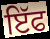
ਇੱਫ